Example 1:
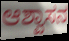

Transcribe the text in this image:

ಆಶ್ವಾಸನ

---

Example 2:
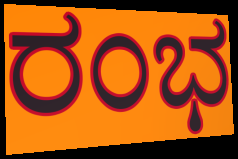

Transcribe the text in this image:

ರಂಭ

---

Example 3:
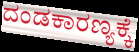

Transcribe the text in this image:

ದಂಡಕಾರಣ್ಯಕ್ಕೆ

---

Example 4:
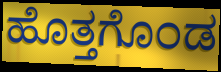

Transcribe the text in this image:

ಹೊತ್ತಗೊಂಡ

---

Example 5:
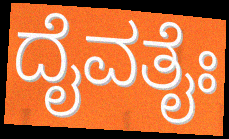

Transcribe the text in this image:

ದೈವತೈಃ